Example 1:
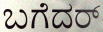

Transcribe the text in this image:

ಬಗೆದರ್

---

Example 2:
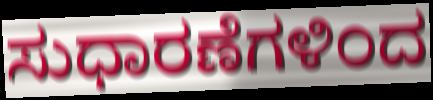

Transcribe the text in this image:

ಸುಧಾರಣೆಗಳಿಂದ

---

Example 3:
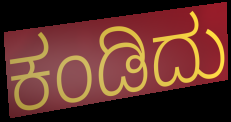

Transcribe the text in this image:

ಕಂಡಿದು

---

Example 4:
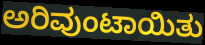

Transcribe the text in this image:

ಅರಿವುಂಟಾಯಿತು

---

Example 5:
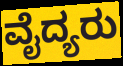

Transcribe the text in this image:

ವೈದ್ಯರು